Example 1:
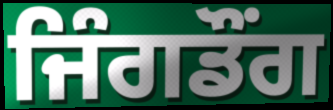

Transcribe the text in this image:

ਜਿੰਗਡੌਂਗ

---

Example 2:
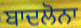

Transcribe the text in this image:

ਬਾਦਲੋਨਾ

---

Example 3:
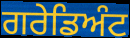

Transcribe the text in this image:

ਗਰੇਡਿਅੰਟ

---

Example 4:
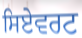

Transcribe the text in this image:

ਸਿਏਵਰਟ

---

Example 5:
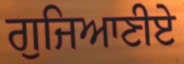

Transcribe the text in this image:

ਗੁਜਿਆਣੀਏ